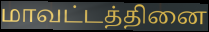
மாவட்டத்தினை